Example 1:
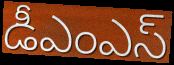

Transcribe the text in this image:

డీఎంఎస్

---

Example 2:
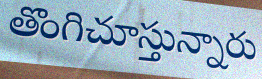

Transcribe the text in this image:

తొంగిచూస్తున్నారు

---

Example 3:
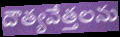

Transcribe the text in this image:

దౌత్యవేత్తలను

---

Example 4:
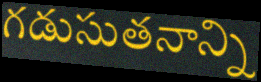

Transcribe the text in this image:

గడుసుతనాన్ని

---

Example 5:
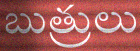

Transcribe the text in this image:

బుత్రులు